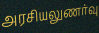
அரசியலுணர்வு